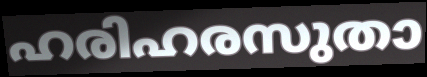
ഹരിഹരസുതാ